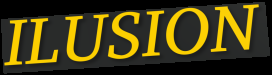
ILUSION